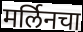
मर्लिनचा